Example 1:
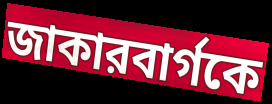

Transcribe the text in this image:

জাকারবার্গকে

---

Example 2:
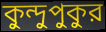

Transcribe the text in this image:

কুন্দুপুকুর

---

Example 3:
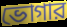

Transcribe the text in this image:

ভোগার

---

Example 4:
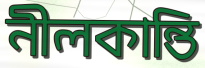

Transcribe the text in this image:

নীলকান্তি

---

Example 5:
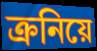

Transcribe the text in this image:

ক্রনিয়ে